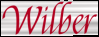
Wilber